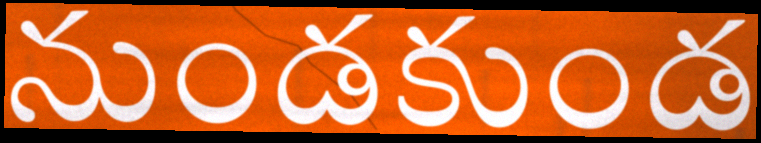
నుండకుండ